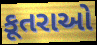
કૂતરાઓ